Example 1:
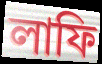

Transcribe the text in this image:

লাফি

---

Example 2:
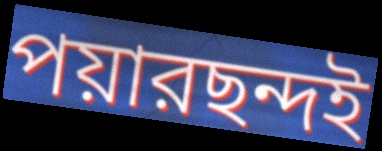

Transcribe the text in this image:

পয়ারছন্দই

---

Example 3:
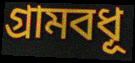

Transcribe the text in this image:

গ্রামবধূ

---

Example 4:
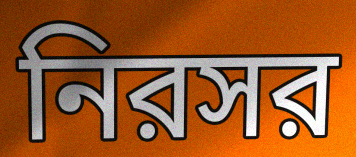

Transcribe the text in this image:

নিরসর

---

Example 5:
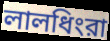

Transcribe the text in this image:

লালধিংরা